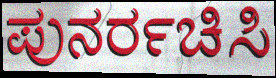
ಪುನರ್ರಚಿಸಿ